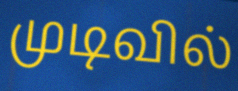
முடிவில்